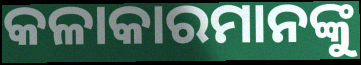
କଳାକାରମାନଙ୍କୁ